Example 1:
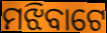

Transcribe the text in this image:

ମଝିବାଟେ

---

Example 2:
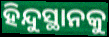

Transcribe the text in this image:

ହିନ୍ଦୁସ୍ଥାନକୁ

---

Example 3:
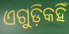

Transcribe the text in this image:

ଏଗୁଡ଼ିକହିଁ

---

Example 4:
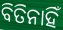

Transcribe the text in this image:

ବିତିନାହିଁ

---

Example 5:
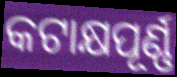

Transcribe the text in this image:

କଟାକ୍ଷପୂର୍ଣ୍ଣ